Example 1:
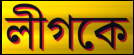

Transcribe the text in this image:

লীগকে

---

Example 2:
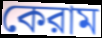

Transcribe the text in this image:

কেরাম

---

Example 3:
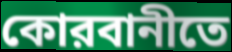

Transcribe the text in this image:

কোরবানীতে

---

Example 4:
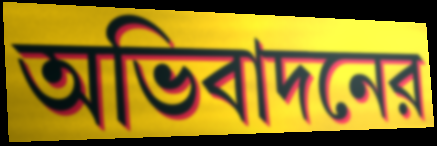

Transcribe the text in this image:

অভিবাদনের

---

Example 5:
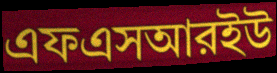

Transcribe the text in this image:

এফএসআরইউ